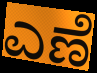
ಎಣೆ